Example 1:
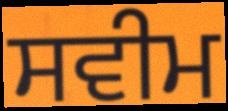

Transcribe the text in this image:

ਸਵੀਮ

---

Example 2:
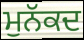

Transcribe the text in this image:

ਮੁਨੱਕਦ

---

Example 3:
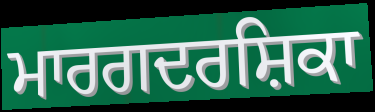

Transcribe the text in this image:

ਮਾਰਗਦਰਸ਼ਿਕਾ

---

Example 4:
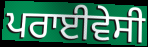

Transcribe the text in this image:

ਪਰਾਈਵੇਸੀ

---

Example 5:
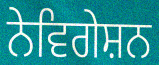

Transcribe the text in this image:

ਨੇਵਿਗੇਸ਼ਨ